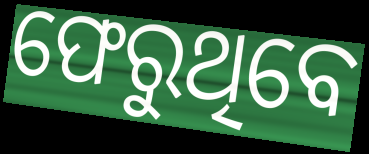
ଫେରୁଥିବେ